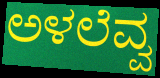
ಅಳಲೆವ್ವ